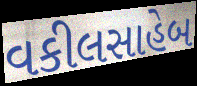
વકીલસાહેબ